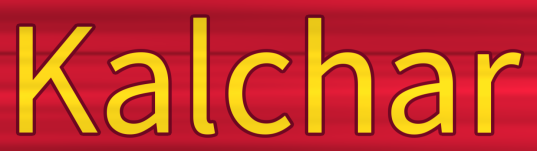
Kalchar